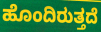
ಹೊಂದಿರುತ್ತದೆ